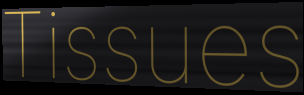
Tissues